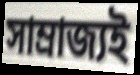
সাম্ৰাজ্যই